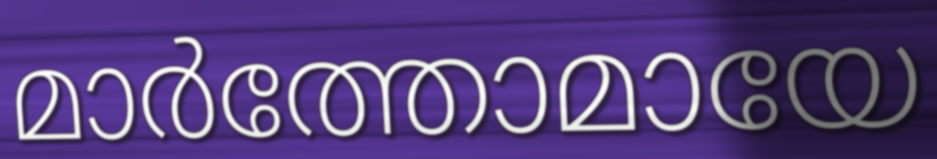
മാർത്തോമായേ